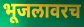
भूजलावरच